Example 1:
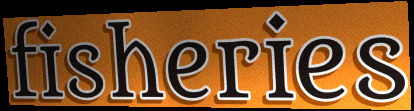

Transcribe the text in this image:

fisheries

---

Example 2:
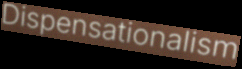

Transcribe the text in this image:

Dispensationalism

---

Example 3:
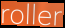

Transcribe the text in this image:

roller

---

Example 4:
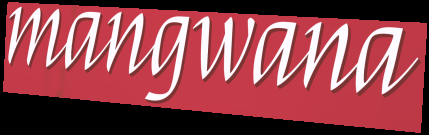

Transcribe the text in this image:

mangwana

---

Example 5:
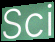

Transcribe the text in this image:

Sci